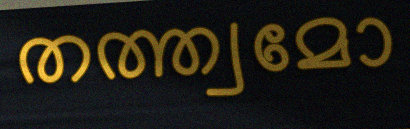
തത്ത്വമോ